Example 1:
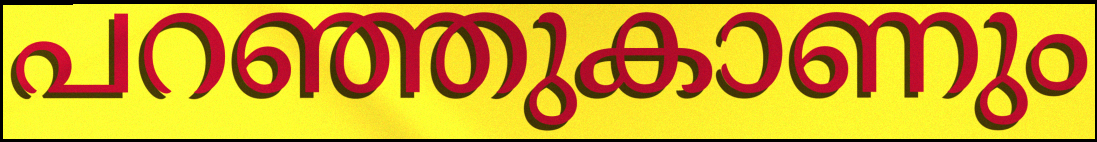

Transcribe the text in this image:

പറഞ്ഞുകാണും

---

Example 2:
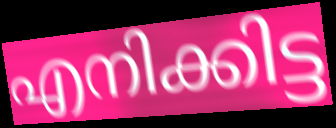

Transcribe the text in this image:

എനിക്കിട്ട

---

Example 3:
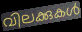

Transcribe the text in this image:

വിലക്കുകൾ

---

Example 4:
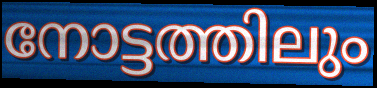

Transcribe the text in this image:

നോട്ടത്തിലും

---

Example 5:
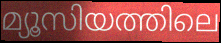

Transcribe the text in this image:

മ്യൂസിയത്തിലെ